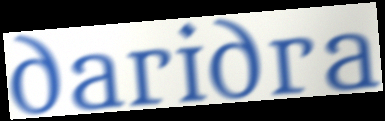
daridra